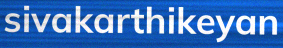
sivakarthikeyan